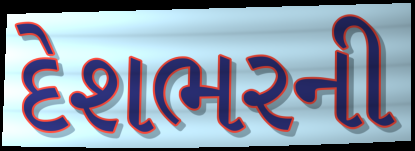
દેશભરની